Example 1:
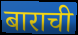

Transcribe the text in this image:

बाराची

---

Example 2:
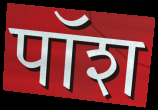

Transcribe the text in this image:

पॉश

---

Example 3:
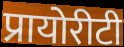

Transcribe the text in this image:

प्रायोरीटी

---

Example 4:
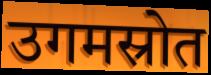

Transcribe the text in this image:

उगमस्रोत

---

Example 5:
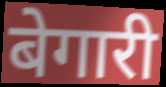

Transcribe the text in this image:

बेगारी